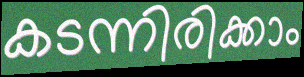
കടന്നിരിക്കാം